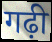
गढ़ी